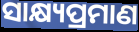
ସାକ୍ଷ୍ୟପ୍ରମାଣ